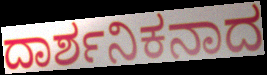
ದಾರ್ಶನಿಕನಾದ